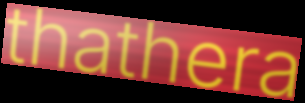
thathera